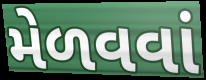
મેળવવાં